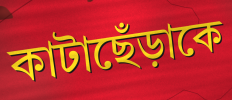
কাটাছেঁড়াকে